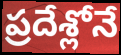
ప్రదేశ్లోనే